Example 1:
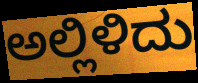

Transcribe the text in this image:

ಅಲ್ಲಿಳಿದು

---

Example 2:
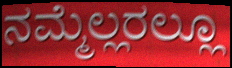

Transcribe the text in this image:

ನಮ್ಮೆಲ್ಲರಲ್ಲೂ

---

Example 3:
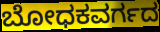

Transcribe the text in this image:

ಬೋಧಕವರ್ಗದ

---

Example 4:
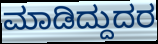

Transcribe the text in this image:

ಮಾಡಿದ್ದುದರ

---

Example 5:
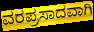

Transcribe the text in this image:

ವರಪ್ರಸಾದವಾಗಿ